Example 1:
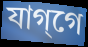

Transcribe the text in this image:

যাগ্‌গে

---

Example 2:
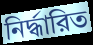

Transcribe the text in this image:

নির্দ্ধারিত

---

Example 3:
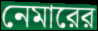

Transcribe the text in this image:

নেমারের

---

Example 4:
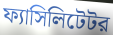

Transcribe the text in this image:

ফ্যাসিলিটেটর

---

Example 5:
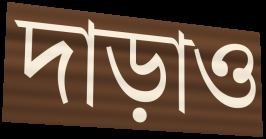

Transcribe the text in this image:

দাড়াও